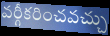
వర్గీకరించవచ్చు